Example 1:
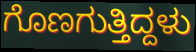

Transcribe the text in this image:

ಗೊಣಗುತ್ತಿದ್ದಳು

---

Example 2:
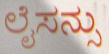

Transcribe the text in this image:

ಲೈಸನ್ಸು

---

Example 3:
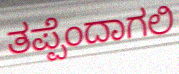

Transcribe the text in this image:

ತಪ್ಪೆಂದಾಗಲಿ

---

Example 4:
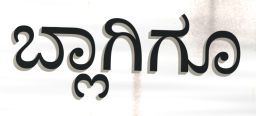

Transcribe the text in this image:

ಬ್ಲಾಗಿಗೂ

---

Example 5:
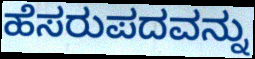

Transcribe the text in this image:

ಹೆಸರುಪದವನ್ನು